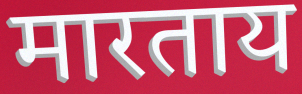
मारताय